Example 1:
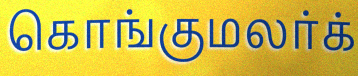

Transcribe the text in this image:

கொங்குமலர்க்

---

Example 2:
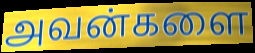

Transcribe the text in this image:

அவன்களை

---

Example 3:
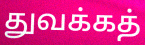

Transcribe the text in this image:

துவக்கத்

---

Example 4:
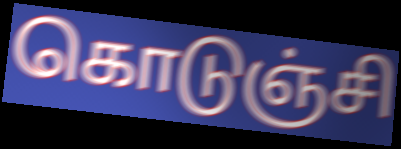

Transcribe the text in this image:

கொடுஞ்சி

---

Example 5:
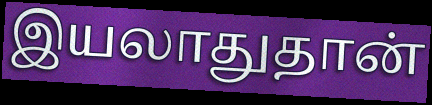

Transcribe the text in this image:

இயலாதுதான்